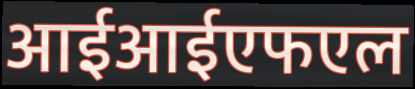
आईआईएफएल